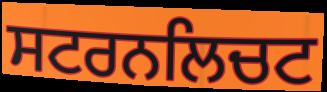
ਸਟਰਨਲਿਚਟ